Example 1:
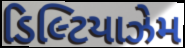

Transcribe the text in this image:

ડિલ્ટિયાઝેમ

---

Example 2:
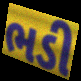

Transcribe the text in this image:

ભડી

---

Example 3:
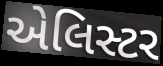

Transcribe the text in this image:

એલિસ્ટર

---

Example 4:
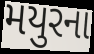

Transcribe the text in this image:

મયુરના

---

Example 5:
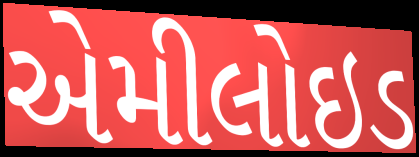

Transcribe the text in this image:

એમીલોઇડ